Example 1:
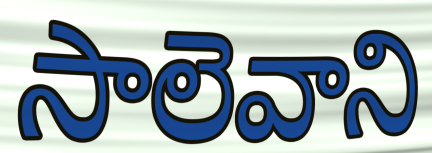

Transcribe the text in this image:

సాలెవాని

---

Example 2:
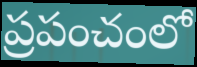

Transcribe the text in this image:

ప్రపంచంలో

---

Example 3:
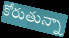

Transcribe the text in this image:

కోరుతున్నా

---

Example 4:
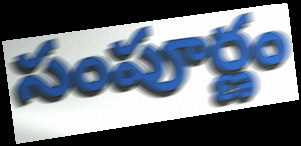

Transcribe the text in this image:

సంపూర్ణం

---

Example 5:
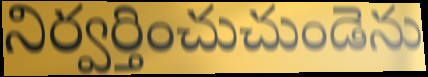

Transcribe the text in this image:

నిర్వర్తించుచుండెను